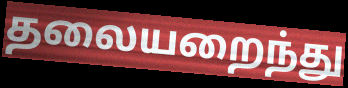
தலையறைந்து